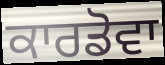
ਕਾਰਡੋਵਾ